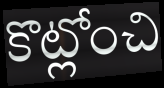
కొట్లోంచి